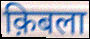
क़िबला